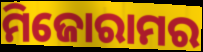
ମିଜୋରାମର